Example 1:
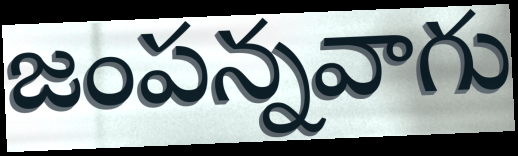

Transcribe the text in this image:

జంపన్నవాగు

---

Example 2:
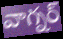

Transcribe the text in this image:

వాగ్నర్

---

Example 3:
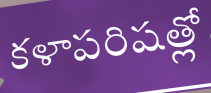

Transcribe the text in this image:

కళాపరిషత్లో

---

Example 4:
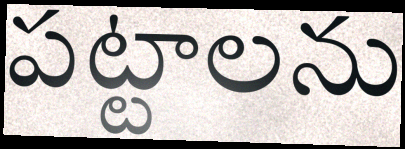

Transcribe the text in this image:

పట్టాలను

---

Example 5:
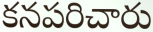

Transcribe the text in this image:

కనపరిచారు